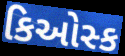
કિઓસ્ક